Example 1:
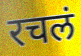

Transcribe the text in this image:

रचलं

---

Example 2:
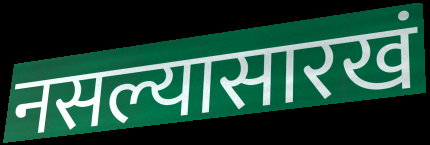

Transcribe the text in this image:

नसल्यासारखं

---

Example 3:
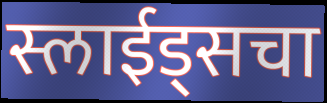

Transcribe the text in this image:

स्लाईड्सचा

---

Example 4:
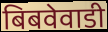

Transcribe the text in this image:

बिबवेवाडी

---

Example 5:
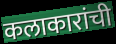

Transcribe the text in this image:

कलाकारांची